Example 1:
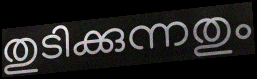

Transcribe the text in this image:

തുടിക്കുന്നതും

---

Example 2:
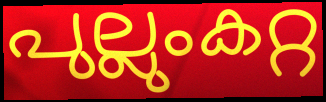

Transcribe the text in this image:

പുല്ലുംകറ്റ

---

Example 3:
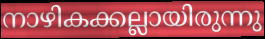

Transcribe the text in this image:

നാഴികക്കല്ലായിരുന്നു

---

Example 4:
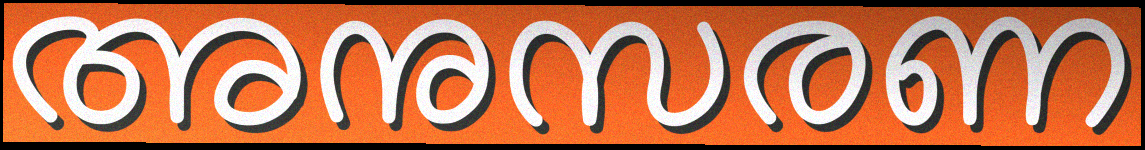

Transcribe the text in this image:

അനുസരണ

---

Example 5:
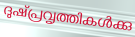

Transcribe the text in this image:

ദുഷ്പ്രവൃത്തികൾക്കു